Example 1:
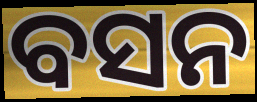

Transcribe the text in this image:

ବସନ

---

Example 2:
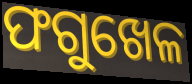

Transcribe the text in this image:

ଫଗୁଖେଳ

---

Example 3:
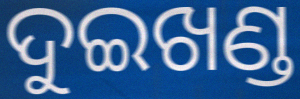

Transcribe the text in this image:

ଦୁଇଖଣ୍ଡ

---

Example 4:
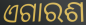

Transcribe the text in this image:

ଏଗାରଶ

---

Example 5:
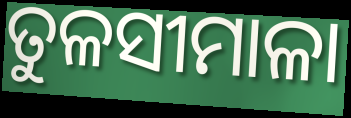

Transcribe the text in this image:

ତୁଳସୀମାଳା